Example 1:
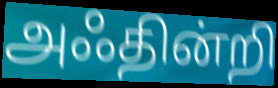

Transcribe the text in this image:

அஃதின்றி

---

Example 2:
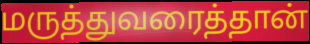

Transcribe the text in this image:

மருத்துவரைத்தான்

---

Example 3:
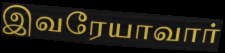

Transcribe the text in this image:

இவரேயாவார்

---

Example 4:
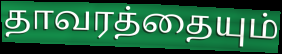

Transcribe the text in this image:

தாவரத்தையும்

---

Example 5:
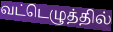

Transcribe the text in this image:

வட்டெழுத்தில்